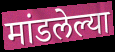
मांडलेल्या